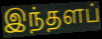
இந்தளப்